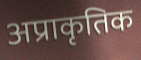
अप्राकृतिक